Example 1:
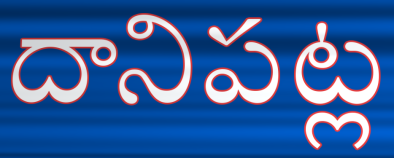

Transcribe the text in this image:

దానిపట్ల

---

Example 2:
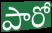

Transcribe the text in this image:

పారో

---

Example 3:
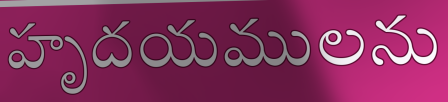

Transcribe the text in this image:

హృదయములను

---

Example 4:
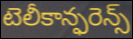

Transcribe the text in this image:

టెలీకాన్ఫరెన్స్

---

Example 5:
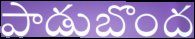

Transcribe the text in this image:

పాడుబొంద